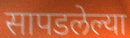
सापडलेल्या